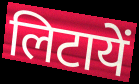
लिटायें